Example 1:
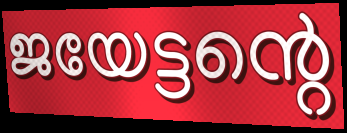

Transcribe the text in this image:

ജയേട്ടന്റെ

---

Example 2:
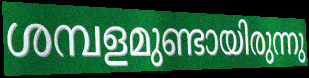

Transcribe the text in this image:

ശമ്പളമുണ്ടായിരുന്നു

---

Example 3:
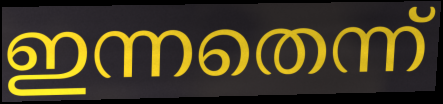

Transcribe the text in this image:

ഇന്നതെന്ന്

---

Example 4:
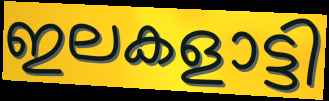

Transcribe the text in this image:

ഇലകളാട്ടി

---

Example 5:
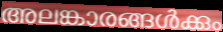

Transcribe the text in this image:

അലങ്കാരങ്ങൾക്കും